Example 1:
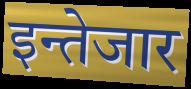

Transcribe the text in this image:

इन्तेजार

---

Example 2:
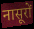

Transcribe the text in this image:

नासूरों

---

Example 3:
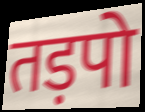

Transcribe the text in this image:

तड़पो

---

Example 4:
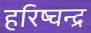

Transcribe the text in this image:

हरिष्चन्द्र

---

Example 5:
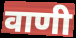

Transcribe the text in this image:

वाणी